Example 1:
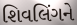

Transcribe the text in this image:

શિવલિંગને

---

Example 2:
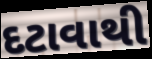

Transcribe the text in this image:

દટાવાથી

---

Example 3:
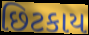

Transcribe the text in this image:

છિટકાય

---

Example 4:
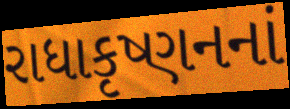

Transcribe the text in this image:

રાધાકૃષ્ણનનાં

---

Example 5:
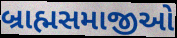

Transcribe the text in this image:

બ્રાહ્મસમાજીઓ